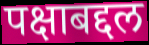
पक्षाबद्दल